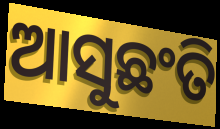
ଆସୁଛଂତି